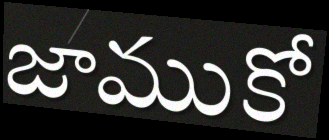
జాముకో